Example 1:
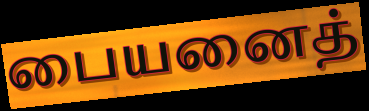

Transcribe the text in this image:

பையனைத்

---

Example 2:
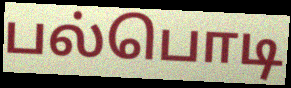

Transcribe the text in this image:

பல்பொடி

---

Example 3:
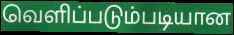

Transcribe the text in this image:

வெளிப்படும்படியான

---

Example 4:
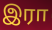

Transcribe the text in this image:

இரா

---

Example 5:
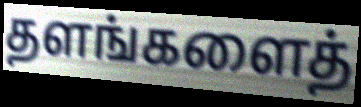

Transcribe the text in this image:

தளங்களைத்